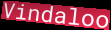
Vindaloo